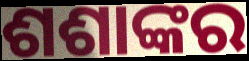
ଶଶାଙ୍କର